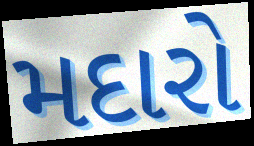
મદારો